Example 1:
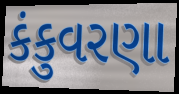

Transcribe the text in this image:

કંકુવરણા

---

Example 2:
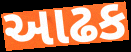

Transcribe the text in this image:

આઢક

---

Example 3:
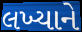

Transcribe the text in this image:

લખ્યાને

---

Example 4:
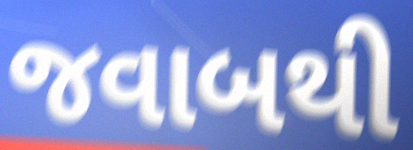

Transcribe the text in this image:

જવાબથી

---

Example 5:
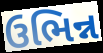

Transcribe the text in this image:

ઉભિન્ન